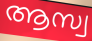
ആസ്വ